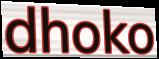
dhoko